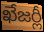
ఖేజర్లీ